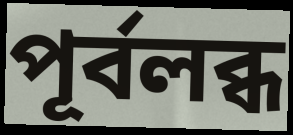
পূৰ্বলব্ধ